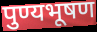
पुण्यभूषण